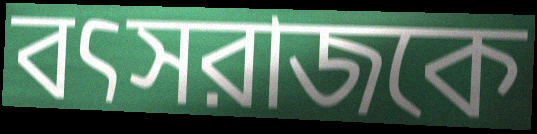
বৎসরাজকে